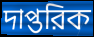
দাপ্তরিক